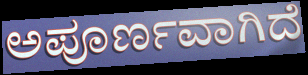
ಅಪೂರ್ಣವಾಗಿದೆ